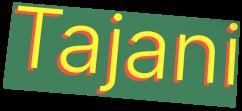
Tajani